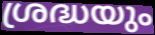
ശ്രദ്ധയും